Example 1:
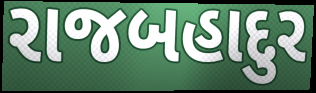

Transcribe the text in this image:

રાજબહાદુર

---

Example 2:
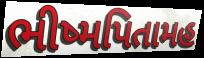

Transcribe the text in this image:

ભીષ્મપિતામહ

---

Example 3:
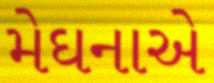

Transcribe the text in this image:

મેઘનાએ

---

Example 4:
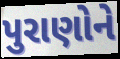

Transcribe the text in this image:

પુરાણોને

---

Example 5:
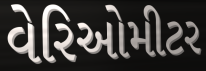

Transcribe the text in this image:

વેરિઓમીટર